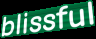
blissful